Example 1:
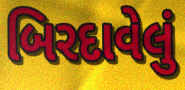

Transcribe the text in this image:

બિરદાવેલું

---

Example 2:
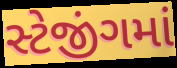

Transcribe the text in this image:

સ્ટેજીંગમાં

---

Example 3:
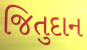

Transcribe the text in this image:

જિતુદાન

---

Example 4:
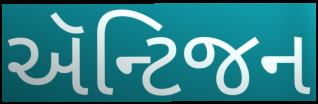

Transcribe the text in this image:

ઍન્ટિજન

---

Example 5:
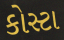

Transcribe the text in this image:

કોસ્ટા